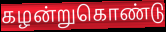
கழன்றுகொண்டு